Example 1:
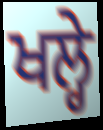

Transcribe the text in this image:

ਖਲ੍ਹੇ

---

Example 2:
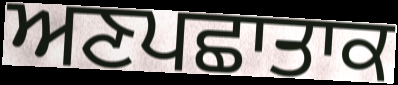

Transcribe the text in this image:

ਅਣਪਛਾਤਾਕ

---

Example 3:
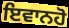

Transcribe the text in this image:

ਇਵਾਨਹੋ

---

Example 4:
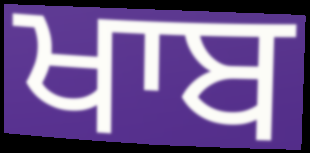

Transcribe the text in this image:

ਖਾਬ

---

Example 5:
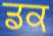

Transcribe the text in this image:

ਡਕ